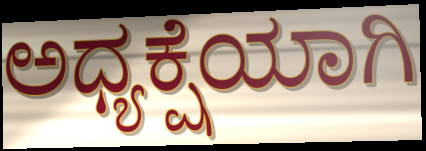
ಅಧ್ಯಕ್ಷೆಯಾಗಿ